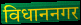
विधाननगर